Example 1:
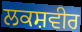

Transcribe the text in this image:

ਲਕਸ਼ਵੀਰ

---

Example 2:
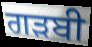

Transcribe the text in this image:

ਗੜਬੀ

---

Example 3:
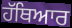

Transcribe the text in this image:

ਹੱਥਿਆਰ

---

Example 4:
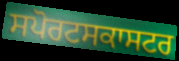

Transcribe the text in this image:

ਸਪੋਰਟਸਕਾਸਟਰ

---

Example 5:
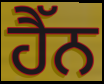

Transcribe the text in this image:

ਹੈੱਨ